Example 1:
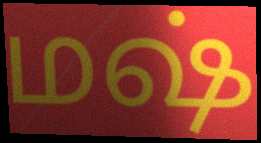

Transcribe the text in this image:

மஷ்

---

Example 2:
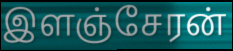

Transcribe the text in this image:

இளஞ்சேரன்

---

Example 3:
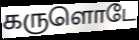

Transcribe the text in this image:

கருளொடே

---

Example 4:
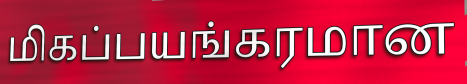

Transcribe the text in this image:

மிகப்பயங்கரமான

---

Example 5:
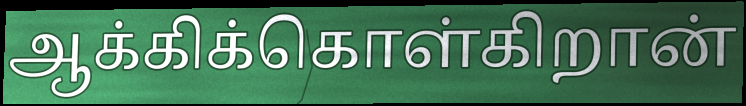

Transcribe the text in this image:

ஆக்கிக்கொள்கிறான்